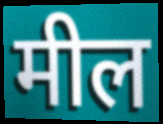
मील